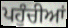
ਪਹੁੰਚੀਆਂ